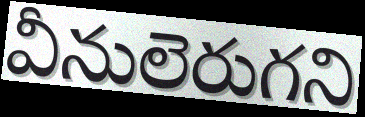
వీనులెరుగని